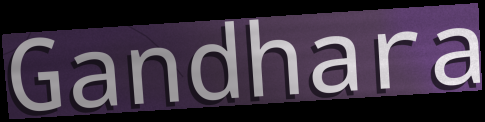
Gandhara